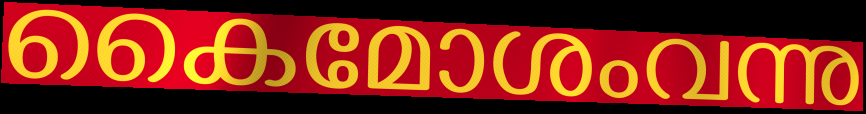
കൈമോശംവന്നു